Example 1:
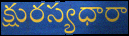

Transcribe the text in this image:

క్షురస్యధారా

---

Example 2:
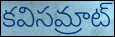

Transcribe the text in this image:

కవిసమ్రాట్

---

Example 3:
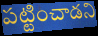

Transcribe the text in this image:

పట్టించాడని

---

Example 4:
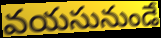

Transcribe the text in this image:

వయసునుండే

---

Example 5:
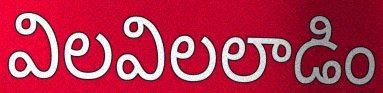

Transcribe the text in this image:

విలవిలలాడిం